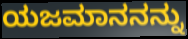
ಯಜಮಾನನನ್ನು